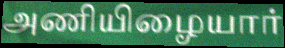
அணியிழையார்